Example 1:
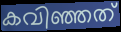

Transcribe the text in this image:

കവിഞ്ഞത്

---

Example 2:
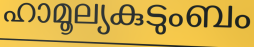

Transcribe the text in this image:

ഹാമൂല്യകുടുംബം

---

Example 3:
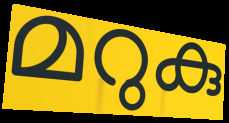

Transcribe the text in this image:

മറുകു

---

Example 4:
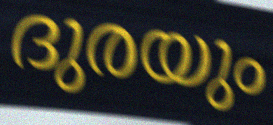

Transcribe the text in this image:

ദുരയും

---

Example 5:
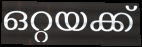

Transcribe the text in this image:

ഒറ്റയക്ക്